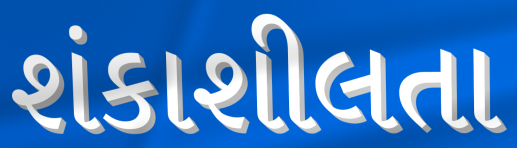
શંકાશીલતા